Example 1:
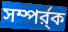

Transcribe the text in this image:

সম্পর্র্ক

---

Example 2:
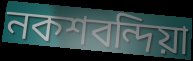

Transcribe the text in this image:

নকশবন্দিয়া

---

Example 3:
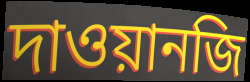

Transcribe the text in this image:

দাওয়ানজি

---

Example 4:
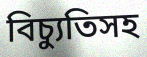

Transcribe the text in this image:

বিচ্যুতিসহ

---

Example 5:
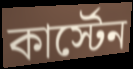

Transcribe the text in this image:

কার্স্টেন